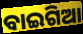
ବାଇଗିଆ